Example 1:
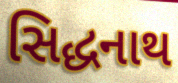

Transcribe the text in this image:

સિદ્ધનાથ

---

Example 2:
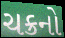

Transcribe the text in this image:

ચક્રનો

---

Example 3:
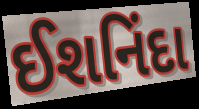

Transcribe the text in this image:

ઈશનિંદા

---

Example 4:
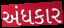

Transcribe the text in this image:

અંધકાર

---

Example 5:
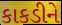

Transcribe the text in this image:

કાકડીને